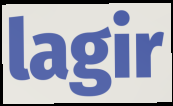
lagir